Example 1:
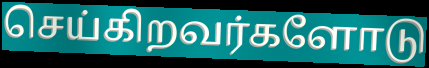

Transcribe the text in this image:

செய்கிறவர்களோடு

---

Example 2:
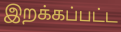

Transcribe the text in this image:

இறக்கப்பட்ட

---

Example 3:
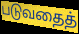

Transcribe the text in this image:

படுவதைத்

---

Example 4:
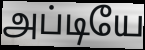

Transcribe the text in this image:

அப்டியே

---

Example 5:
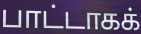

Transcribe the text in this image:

பாட்டாகக்